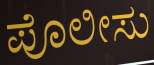
ಪೊಲೀಸು